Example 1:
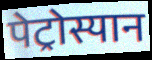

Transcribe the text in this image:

पेट्रोस्यान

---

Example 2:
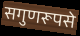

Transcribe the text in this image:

सगुणरूपसे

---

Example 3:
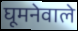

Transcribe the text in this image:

घूमनेवाले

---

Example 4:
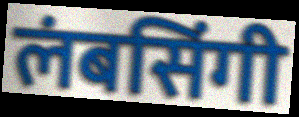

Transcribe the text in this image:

लंबसिंगी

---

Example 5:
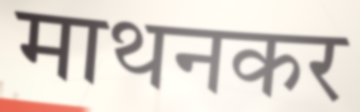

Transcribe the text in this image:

माथनकर